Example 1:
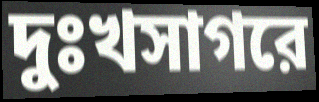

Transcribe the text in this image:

দুঃখসাগরে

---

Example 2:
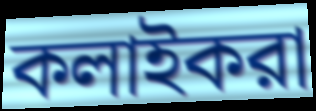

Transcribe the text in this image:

কলাইকরা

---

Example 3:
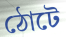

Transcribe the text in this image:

ঠোটে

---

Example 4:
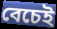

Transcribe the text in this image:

বেচেই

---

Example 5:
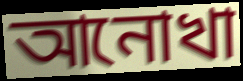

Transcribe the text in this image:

আনোখা